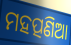
ମହତ୍ପଣିଆ